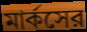
মার্কসের